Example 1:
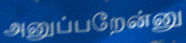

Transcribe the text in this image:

அனுப்பறேன்னு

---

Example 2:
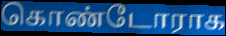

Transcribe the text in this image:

கொண்டோராக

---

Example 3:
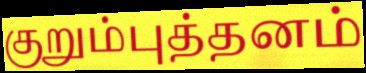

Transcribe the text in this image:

குறும்புத்தனம்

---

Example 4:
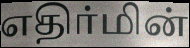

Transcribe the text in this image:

எதிர்மின்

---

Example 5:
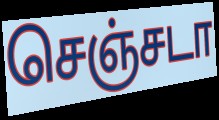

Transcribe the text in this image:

செஞ்சடா